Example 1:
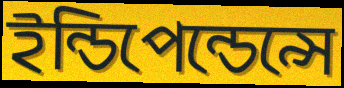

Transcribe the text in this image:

ইন্ডিপেন্ডেন্সে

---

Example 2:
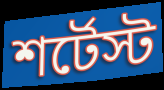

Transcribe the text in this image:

শর্টেস্ট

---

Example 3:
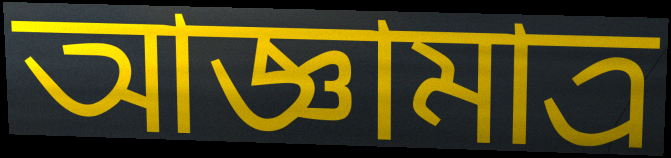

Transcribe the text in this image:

আজ্ঞামাত্র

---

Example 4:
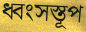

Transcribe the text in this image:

ধ্বংসস্তূপ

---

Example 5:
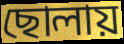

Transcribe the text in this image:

ছোলায়